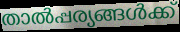
താൽപ്പര്യങ്ങൾക്ക്